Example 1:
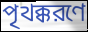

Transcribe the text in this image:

পৃথক্করণে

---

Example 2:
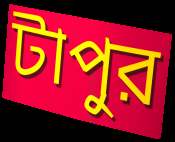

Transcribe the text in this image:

টাপুর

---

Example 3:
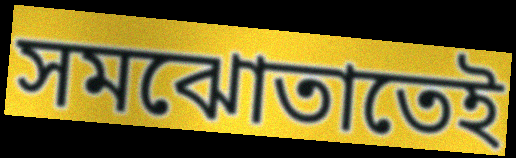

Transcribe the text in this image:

সমঝোতাতেই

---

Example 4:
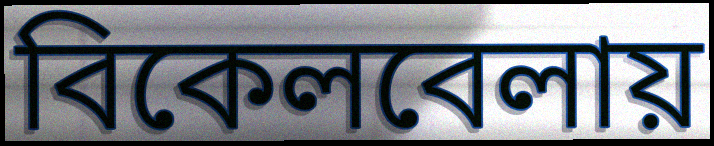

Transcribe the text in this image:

বিকেলবেলায়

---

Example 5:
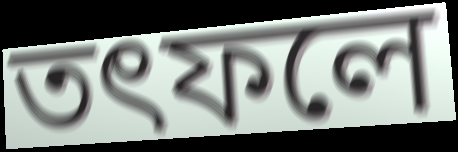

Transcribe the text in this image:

তৎফলে